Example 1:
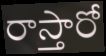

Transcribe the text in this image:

రాస్తారో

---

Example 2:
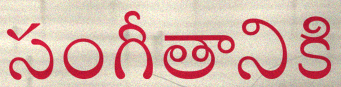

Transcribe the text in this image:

సంగీతానికి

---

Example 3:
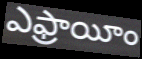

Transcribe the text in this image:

ఎఫ్రాయీం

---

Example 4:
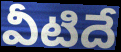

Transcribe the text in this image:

వీటిదే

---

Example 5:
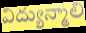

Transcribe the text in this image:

విద్యున్మాలి